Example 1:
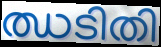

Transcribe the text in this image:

ഝടിതി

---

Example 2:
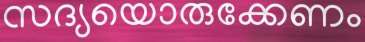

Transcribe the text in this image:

സദ്യയൊരുക്കേണം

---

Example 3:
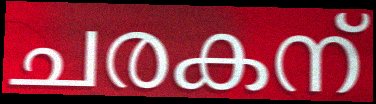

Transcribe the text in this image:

ചരകന്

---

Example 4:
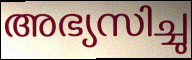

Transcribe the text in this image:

അഭ്യസിച്ചു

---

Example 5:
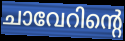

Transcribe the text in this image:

ചാവേറിന്റെ